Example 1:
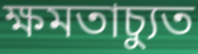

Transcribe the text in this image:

ক্ষমতাচ্যুত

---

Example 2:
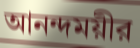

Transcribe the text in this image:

আনন্দময়ীর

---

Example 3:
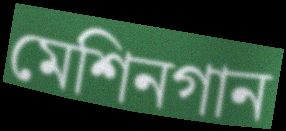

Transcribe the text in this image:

মেশিনগান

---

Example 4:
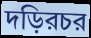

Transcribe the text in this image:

দড়িরচর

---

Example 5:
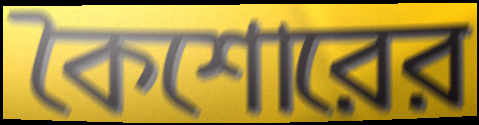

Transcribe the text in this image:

কৈশোরের